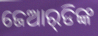
ଜେଆର୍‌ଡିଙ୍କ